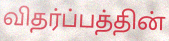
விதர்ப்பத்தின்